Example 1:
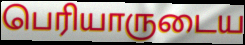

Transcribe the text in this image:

பெரியாருடைய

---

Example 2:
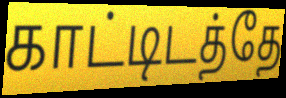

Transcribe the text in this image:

காட்டிடத்தே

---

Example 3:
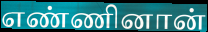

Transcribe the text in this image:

எண்ணினான்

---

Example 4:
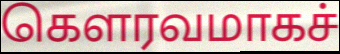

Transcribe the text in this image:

கௌரவமாகச்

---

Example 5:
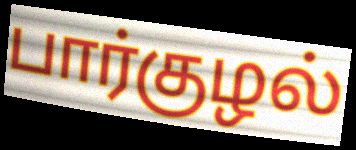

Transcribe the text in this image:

பார்குழல்